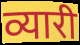
व्यारी